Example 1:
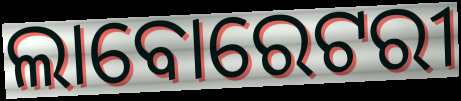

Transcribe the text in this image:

ଲାବୋରେଟରୀ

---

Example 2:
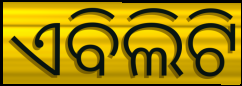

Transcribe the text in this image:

ଏବିଲିଟି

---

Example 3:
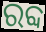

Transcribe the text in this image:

ରବ୍ଦ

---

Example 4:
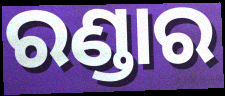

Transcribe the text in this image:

ରଣ୍ଡାର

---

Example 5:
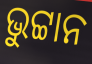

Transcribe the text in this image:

ଭୁଟ୍ଟାନ